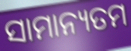
ସାମାନ୍ୟତମ